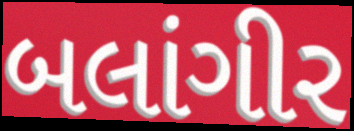
બલાંગીર